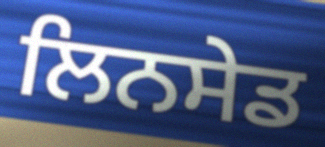
ਲਿਨਸੇਡ